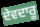
ਦੇਵਦਾਰੂ